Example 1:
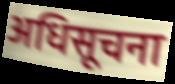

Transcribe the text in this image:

अधिसूचना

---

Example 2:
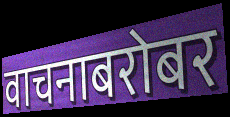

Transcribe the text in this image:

वाचनाबरोबर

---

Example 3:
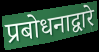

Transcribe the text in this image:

प्रबोधनाद्वारे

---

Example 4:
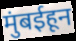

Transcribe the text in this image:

मुंबईहून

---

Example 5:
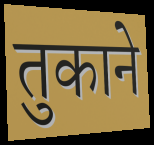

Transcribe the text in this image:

तुकाने